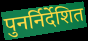
पुनर्निर्देशित